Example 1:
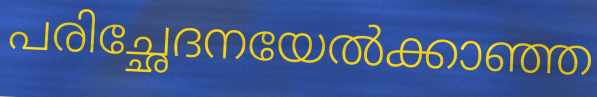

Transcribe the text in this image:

പരിച്ഛേദനയേൽക്കാഞ്ഞ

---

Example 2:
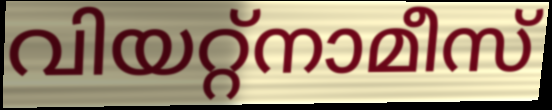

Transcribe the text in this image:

വിയറ്റ്നാമീസ്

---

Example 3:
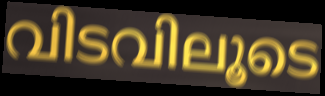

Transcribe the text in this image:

വിടവിലൂടെ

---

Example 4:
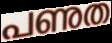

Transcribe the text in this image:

പണുത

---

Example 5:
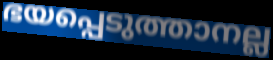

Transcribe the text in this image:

ഭയപ്പെടുത്താനല്ല